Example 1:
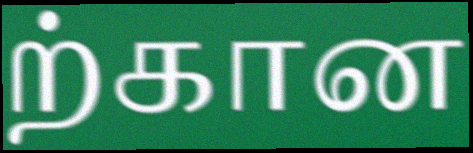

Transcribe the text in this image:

ற்கான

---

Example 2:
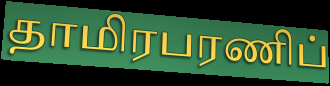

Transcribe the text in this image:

தாமிரபரணிப்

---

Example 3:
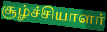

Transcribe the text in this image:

சூழ்ச்சியாளர்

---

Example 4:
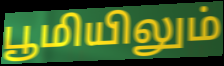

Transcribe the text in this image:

பூமியிலும்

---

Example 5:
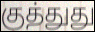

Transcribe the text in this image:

குத்துது